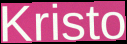
Kristo